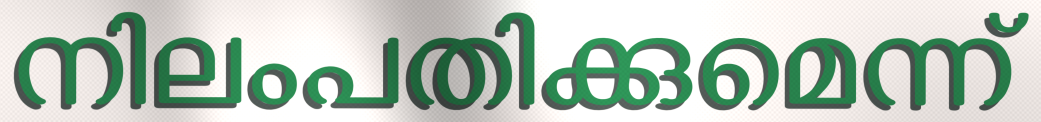
നിലംപതിക്കുമെന്ന്